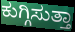
ಕುಗ್ಗಿಸುತ್ತಾ